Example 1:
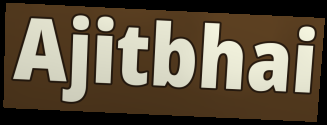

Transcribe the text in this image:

Ajitbhai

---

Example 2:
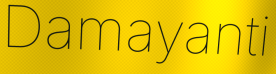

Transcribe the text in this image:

Damayanti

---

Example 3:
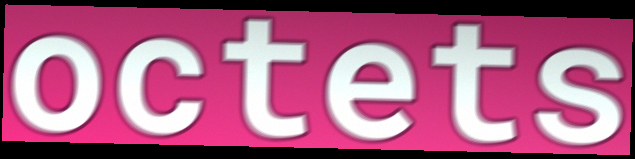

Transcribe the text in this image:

octets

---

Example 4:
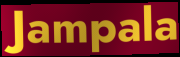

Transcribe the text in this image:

Jampala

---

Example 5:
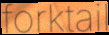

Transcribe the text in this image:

forktail